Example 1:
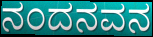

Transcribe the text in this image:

ನಂದನವನ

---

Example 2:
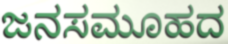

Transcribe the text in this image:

ಜನಸಮೂಹದ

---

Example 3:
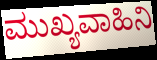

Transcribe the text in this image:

ಮುಖ್ಯವಾಹಿನಿ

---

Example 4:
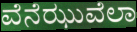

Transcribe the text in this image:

ವೆನೆಝುವೆಲಾ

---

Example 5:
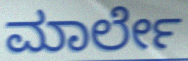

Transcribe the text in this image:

ಮಾರ್ಲೇ